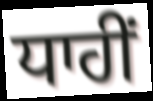
ਧਾਹੀਂ